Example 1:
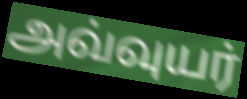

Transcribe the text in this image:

அவ்வுயர்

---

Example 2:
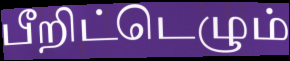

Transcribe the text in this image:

பீறிட்டெழும்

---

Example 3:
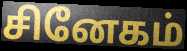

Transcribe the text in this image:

சினேகம்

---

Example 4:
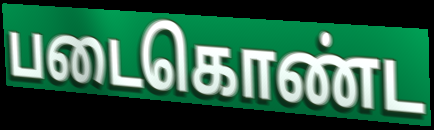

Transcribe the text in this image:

படைகொண்ட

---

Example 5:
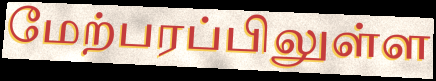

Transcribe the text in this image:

மேற்பரப்பிலுள்ள